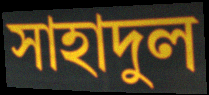
সাহাদুল